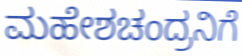
ಮಹೇಶಚಂದ್ರನಿಗೆ